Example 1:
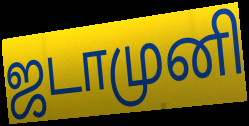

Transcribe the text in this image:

ஜடாமுனி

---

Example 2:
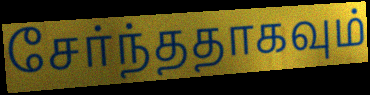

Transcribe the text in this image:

சேர்ந்ததாகவும்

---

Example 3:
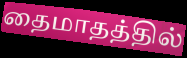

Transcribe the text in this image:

தைமாதத்தில்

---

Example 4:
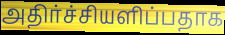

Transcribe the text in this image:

அதிர்ச்சியளிப்பதாக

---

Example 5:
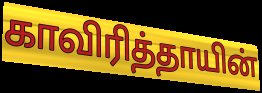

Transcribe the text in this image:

காவிரித்தாயின்